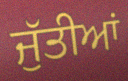
ਜੁੱਤੀਆਂ